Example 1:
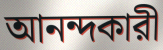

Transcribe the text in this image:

আনন্দকারী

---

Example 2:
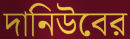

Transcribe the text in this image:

দানিউবের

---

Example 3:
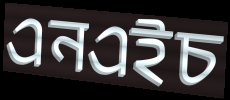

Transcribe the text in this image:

এনএইচ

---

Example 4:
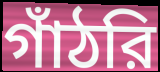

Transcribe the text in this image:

গাঁঠরি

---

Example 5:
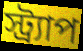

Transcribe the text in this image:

স্ট্র্যাপ